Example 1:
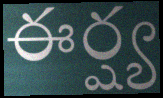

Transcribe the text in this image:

ఈర్ష్య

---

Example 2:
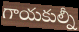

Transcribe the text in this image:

గాయకుల్నీ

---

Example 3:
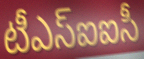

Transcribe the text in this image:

టీఎస్ఐఐసీ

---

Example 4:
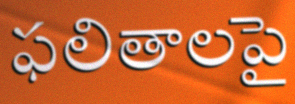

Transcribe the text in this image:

ఫలితాలపై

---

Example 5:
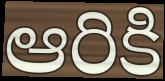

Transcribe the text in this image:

ఆరికి